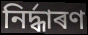
নিৰ্দ্ধাৰণ